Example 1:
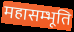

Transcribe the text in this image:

महासम्भूति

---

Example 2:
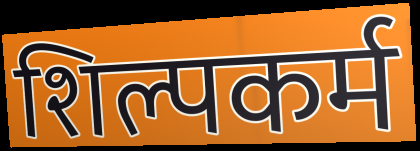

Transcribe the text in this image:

शिल्पकर्म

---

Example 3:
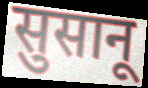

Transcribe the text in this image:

सुसानू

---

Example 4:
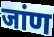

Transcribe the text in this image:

जांण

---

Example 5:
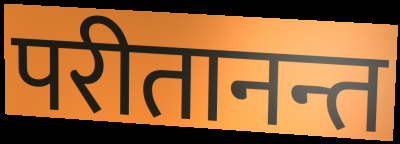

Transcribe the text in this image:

परीतानन्त